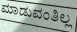
ಮಾಡುವಂತಿಲ್ಲ